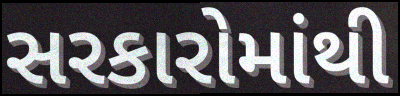
સરકારોમાંથી